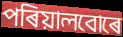
পৰিয়ালবোৰে